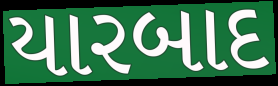
યારબાદ